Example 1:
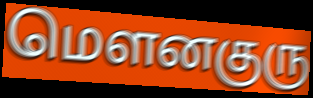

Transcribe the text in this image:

மௌனகுரு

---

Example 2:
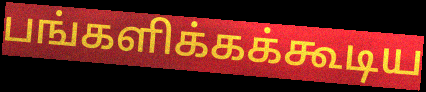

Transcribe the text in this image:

பங்களிக்கக்கூடிய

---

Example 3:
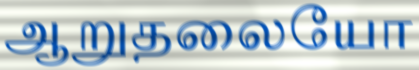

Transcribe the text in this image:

ஆறுதலையோ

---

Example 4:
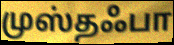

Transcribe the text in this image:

முஸ்தஃபா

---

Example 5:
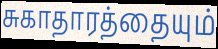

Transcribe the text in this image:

சுகாதாரத்தையும்